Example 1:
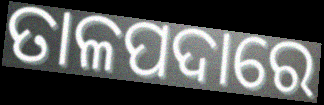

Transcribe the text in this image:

ତାଳପଦାରେ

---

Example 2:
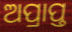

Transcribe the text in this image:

ଅପ୍ରାପ୍ତ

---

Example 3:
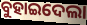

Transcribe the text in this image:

ବୁହାଇଦେଲା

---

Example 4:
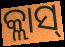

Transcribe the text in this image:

କ୍ଲାସ୍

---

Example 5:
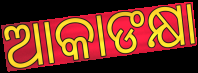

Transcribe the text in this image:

ଆକାଙକ୍ଷା